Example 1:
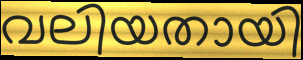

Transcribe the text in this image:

വലിയതായി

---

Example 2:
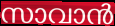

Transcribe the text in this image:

സാവാൻ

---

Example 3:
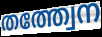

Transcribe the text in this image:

തത്ത്വേന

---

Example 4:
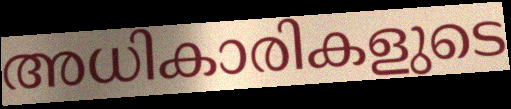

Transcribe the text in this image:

അധികാരികളുടെ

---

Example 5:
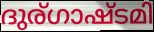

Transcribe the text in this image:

ദുര്ഗാഷ്ടമി